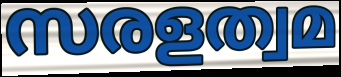
സരളത്വമ